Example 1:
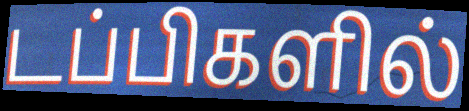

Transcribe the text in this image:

டப்பிகளில்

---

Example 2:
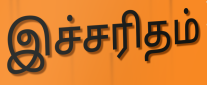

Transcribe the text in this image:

இச்சரிதம்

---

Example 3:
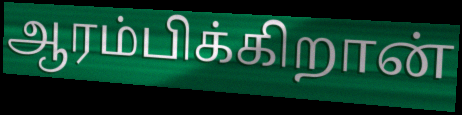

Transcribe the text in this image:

ஆரம்பிக்கிறான்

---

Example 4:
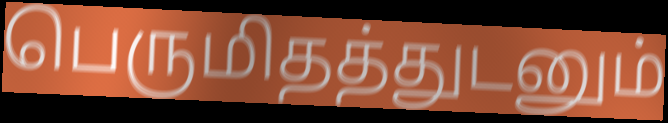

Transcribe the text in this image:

பெருமிதத்துடனும்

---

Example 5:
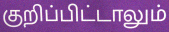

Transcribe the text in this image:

குறிப்பிட்டாலும்